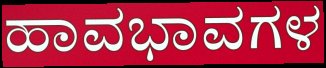
ಹಾವಭಾವಗಳ